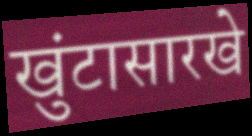
खुंटासारखे